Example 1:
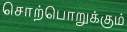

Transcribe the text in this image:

சொற்பொறுக்கும்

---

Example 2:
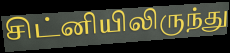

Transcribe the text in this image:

சிட்னியிலிருந்து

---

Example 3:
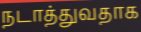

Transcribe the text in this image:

நடாத்துவதாக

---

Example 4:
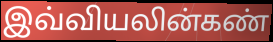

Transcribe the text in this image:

இவ்வியலின்கண்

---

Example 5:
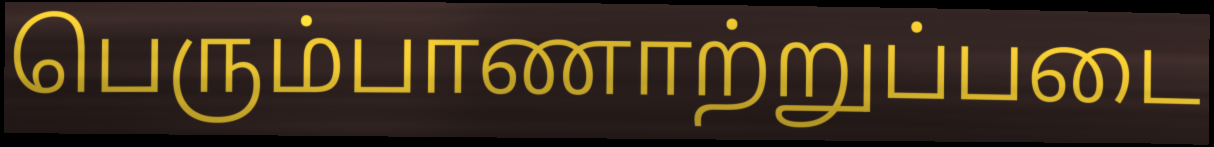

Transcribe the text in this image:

பெரும்பாணாற்றுப்படை